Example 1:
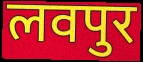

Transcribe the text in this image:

लवपुर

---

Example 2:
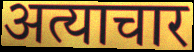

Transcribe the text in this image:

अत्‍याचार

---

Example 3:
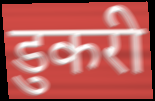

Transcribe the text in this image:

डुकरी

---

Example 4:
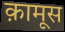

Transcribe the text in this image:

क़ामूस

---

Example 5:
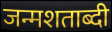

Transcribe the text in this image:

जन्मशताब्दी